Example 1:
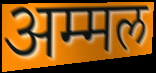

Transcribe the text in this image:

अम्मल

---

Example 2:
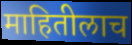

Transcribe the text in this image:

माहितीलाच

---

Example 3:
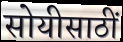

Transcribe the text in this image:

सोयीसाठीं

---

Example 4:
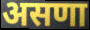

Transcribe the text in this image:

असणा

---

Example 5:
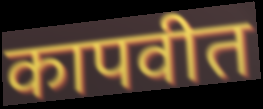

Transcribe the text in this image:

कापवीत